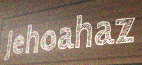
Jehoahaz